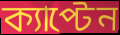
ক্যাপ্টেন